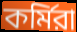
কর্মিরা